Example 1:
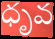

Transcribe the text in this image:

ధృవ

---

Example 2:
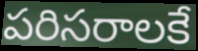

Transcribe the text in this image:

పరిసరాలకే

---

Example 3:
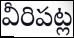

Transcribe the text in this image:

వీరిపట్ల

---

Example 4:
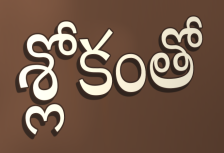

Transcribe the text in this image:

శ్లోకంతో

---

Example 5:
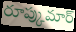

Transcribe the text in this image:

రూప్కుమార్